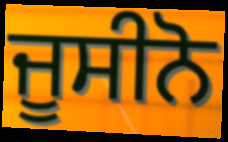
ਜੂਸੀਨੋ